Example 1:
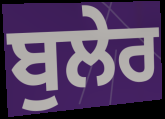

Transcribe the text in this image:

ਬੁਲੇਰ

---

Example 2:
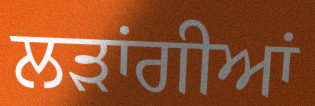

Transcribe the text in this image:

ਲੜਾਂਗੀਆਂ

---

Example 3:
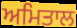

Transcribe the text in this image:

ਅਮਿਤਾਲ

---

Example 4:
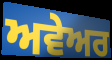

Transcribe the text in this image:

ਅਵੇਅਰ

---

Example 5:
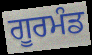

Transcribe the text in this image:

ਗੂਰਮੰਡ